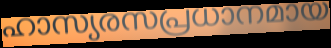
ഹാസ്യരസപ്രധാനമായ